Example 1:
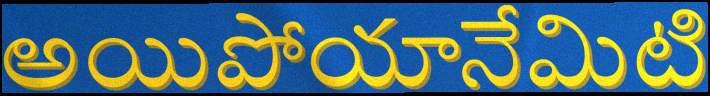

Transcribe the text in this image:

అయిపోయానేమిటి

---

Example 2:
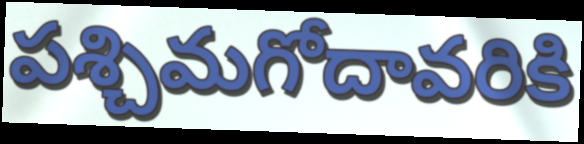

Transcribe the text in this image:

పశ్చిమగోదావరికి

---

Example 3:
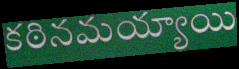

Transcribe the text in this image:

కఠినమయ్యాయి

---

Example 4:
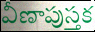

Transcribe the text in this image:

వీణాపుస్తక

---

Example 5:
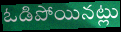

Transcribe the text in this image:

ఓడిపోయినట్లు